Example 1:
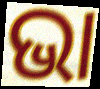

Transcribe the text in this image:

ଭା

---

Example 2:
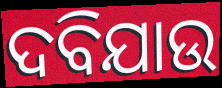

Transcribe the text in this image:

ଦବିଯାଉ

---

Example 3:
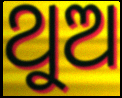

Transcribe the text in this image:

ଥୁଅ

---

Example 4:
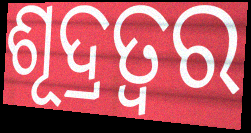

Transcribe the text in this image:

ଶୂଦ୍ରତ୍ଵର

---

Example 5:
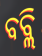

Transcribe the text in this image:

ବବ୍ଲି